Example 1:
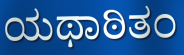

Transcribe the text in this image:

ಯಥಾಠಿತಂ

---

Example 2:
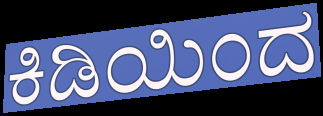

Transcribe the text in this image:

ಕಿಡಿಯಿಂದ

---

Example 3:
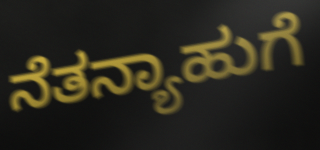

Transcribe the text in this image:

ನೆತನ್ಯಾಹುಗೆ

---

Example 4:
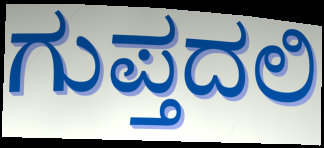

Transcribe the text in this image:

ಗುಪ್ತದಲಿ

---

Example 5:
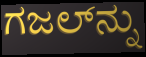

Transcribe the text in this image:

ಗಜಲ್‍ನ್ನು